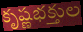
కృష్ణభక్తుల